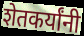
शेतकर्यांनी